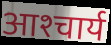
आश्चार्य